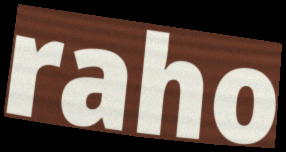
raho